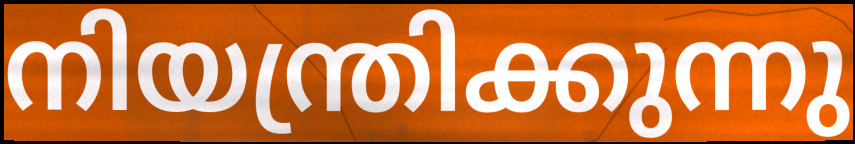
നിയന്ത്രിക്കുന്നു